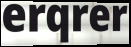
erqrer